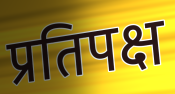
प्रतिपक्ष